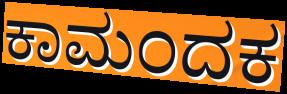
ಕಾಮಂದಕ